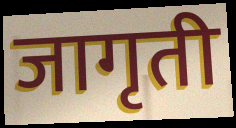
जागृती